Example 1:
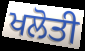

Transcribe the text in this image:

ਖਲੋਤੀ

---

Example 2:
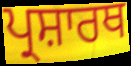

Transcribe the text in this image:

ਪ੍ਰਸ਼ਾਰਥ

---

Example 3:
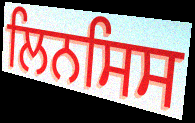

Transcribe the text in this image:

ਲਿਨਸਿਸ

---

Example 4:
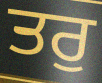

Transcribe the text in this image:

ਤਰੁ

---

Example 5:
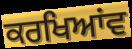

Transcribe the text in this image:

ਕਰਖਿਆਂਵ